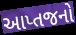
આપ્તજનો